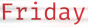
Friday